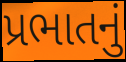
પ્રભાતનું